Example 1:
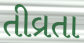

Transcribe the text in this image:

તીવ્રતા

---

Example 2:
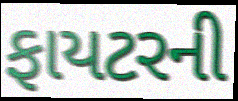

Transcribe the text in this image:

ફાયટરની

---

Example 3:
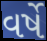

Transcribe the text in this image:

વર્ષે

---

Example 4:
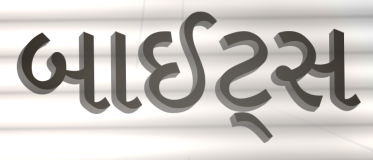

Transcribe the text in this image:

બાઈટ્સ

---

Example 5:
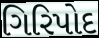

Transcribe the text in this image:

ગિરિપોદ